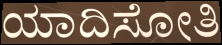
ಯಾದಿಸೋತಿ